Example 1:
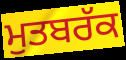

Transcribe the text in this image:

ਮੁਤਬਰੱਕ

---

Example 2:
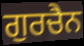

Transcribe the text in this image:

ਗੁਰਚੈਨ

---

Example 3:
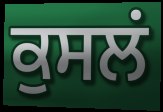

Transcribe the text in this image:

ਕੁਸਲਂ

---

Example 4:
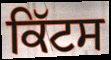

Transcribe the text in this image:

ਕਿੱਟਸ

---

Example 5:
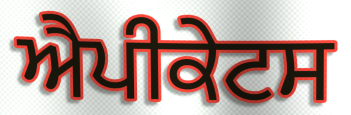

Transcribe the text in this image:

ਐਪੀਕੇਟਸ